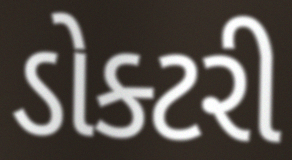
ડોક્ટરી